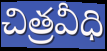
చిత్రవీధి